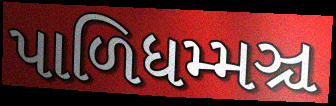
પાળિધમ્મઞ્ચ